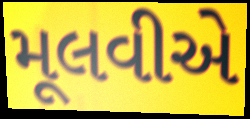
મૂલવીએ